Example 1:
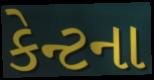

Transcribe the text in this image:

કેન્ટના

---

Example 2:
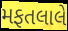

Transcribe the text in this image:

મફતલાલે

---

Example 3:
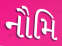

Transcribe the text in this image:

નૌમિ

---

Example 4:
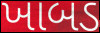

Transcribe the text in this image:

ખાબડ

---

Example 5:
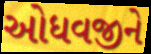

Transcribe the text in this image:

ઓધવજીને